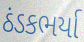
ઠંડકભર્યા